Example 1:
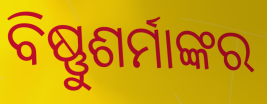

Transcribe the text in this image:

ବିଷ୍ଣୁଶର୍ମାଙ୍କର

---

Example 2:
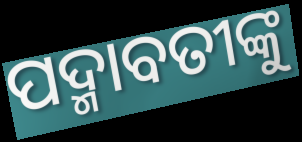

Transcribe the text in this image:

ପଦ୍ମାବତୀଙ୍କୁ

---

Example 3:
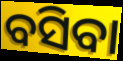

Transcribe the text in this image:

ବସିବା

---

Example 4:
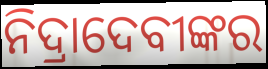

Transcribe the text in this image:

ନିଦ୍ରାଦେବୀଙ୍କର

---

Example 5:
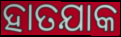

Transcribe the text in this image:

ହାତଯାକ